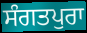
ਸੰਗਤਪੁਰਾ